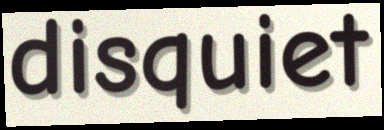
disquiet